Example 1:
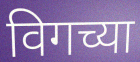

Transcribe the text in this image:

विगच्या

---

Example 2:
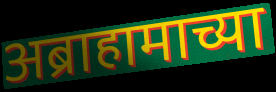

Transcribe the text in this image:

अब्राहामाच्या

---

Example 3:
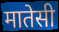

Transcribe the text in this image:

मातेसी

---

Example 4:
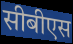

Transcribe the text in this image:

सीबीएस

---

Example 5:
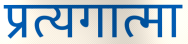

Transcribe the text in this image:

प्रत्यगात्मा